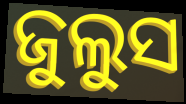
ଜୁଲୁସ